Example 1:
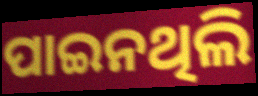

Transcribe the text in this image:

ପାଇନଥିଲି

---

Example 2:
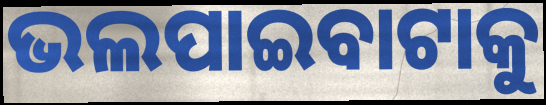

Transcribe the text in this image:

ଭଲପାଇବାଟାକୁ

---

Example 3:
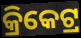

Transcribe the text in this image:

କ୍ରିକେଟ୍ର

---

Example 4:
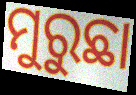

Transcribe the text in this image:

ମୁରୁଛା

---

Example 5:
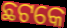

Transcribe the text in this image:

ଛଟକେ